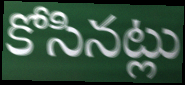
కోసినట్లు